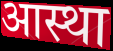
आस्‍था